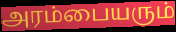
அரம்பையரும்